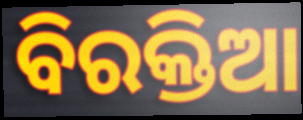
ବିରକ୍ତିଆ